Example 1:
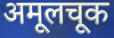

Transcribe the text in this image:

अमूलचूक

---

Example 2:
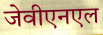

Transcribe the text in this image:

जेवीएनएल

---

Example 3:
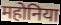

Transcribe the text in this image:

महोनिया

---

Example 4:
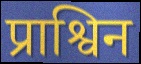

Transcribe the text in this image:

प्राश्विन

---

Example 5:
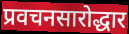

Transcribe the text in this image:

प्रवचनसारोद्धार